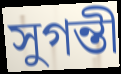
সুগন্তী